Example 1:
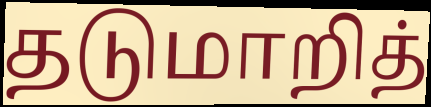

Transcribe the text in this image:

தடுமாறித்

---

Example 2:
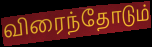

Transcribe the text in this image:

விரைந்தோடும்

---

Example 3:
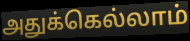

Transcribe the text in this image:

அதுக்கெல்லாம்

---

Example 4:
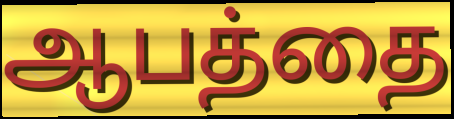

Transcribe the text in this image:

ஆபத்தை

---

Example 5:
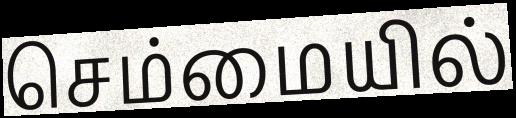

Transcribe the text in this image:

செம்மையில்